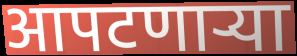
आपटणाऱ्या